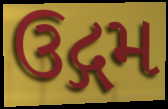
ઉદ્ગમ